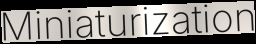
Miniaturization